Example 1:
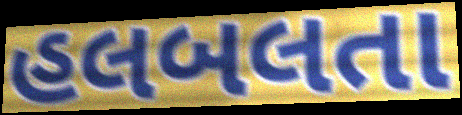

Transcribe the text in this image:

હલબલતા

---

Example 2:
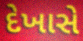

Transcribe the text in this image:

દેખાસે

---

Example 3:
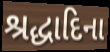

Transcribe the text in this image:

શ્રદ્ધાદિના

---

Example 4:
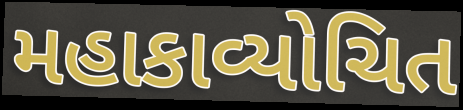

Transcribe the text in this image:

મહાકાવ્યોચિત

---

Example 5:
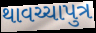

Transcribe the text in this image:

થાવચ્ચાપુત્ર